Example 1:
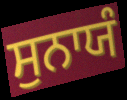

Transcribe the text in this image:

ਸੁਨਾਯੰ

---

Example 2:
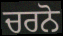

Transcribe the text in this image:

ਚਰਨੋ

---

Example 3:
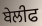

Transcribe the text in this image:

ਬੇਲੀਫ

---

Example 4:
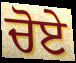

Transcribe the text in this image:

ਚੋਏ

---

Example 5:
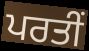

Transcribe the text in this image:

ਪਰਤੀਂ